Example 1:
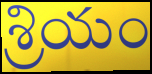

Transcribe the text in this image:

శ్రియం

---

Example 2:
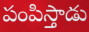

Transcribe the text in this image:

పంపిస్తాడు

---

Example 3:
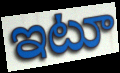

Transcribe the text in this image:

ఇటూ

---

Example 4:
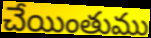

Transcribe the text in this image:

చేయింతుము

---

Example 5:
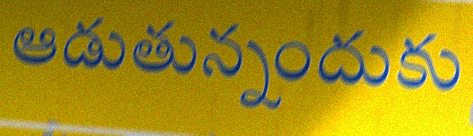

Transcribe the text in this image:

ఆడుతున్నందుకు